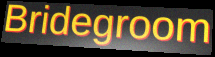
Bridegroom